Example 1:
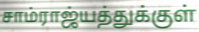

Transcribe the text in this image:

சாம்ராஜ்யத்துக்குள்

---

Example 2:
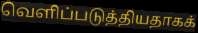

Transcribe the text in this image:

வெளிப்படுத்தியதாகக்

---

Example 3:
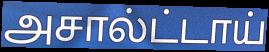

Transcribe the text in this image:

அசால்ட்டாய்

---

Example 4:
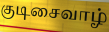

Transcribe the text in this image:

குடிசைவாழ்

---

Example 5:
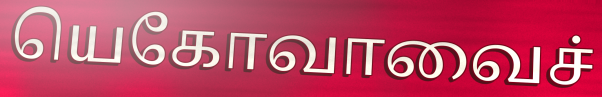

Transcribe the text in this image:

யெகோவாவைச்